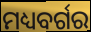
ମଧ୍ୟବର୍ଗର